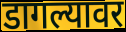
डागल्यावर